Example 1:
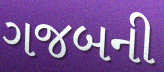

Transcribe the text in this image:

ગજબની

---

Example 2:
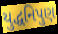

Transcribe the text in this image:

યુદ્ધનિપુણ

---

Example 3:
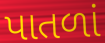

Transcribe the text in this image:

પાતળાં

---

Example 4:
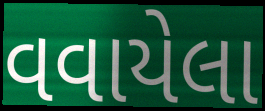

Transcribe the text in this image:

વવાયેલા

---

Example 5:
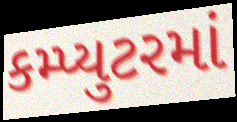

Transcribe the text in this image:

કમ્પ્યુટરમાં